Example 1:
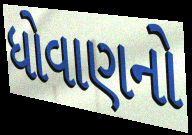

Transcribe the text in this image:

ધોવાણનો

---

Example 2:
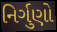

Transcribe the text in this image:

નિર્ગુણો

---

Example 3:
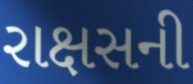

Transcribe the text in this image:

રાક્ષસની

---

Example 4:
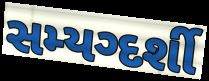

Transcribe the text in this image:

સમ્યગ્દર્શી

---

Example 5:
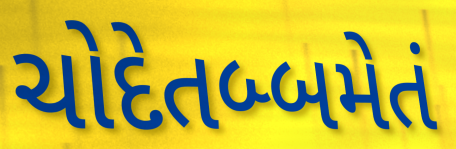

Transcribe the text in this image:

ચોદેતબ્બમેતં